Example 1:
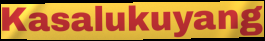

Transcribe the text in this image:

Kasalukuyang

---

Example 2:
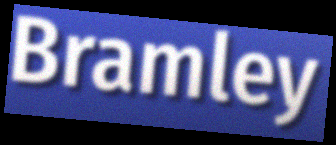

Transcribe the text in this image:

Bramley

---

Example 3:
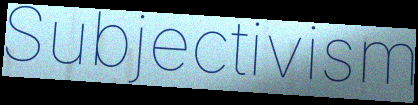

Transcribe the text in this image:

Subjectivism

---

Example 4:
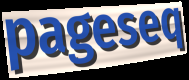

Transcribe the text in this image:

pageseq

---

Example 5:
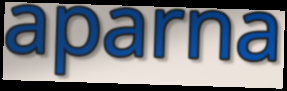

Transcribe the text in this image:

aparna